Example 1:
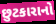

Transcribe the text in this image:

છુટકારાનો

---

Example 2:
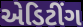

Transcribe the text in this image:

એડિટીંગ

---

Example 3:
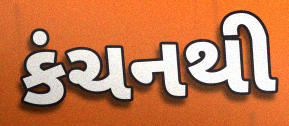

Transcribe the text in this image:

કંચનથી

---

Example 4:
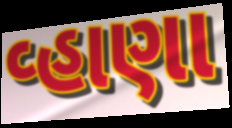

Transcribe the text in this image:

વ્હાણા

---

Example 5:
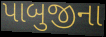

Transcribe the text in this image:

પાબુજીના